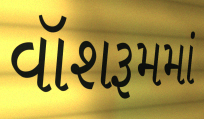
વૉશરૂમમાં